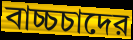
বাচ্চচাদের